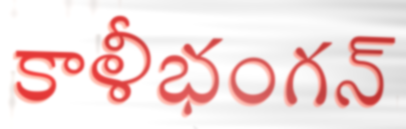
కాళీభంగన్